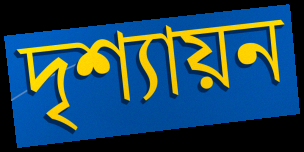
দৃশ্যায়ন